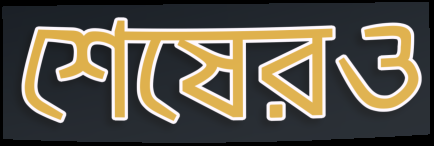
শেষেরও